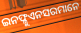
ଇନଫ୍ଳୁଏନସରମାନେ